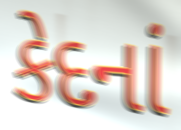
કેદનાં